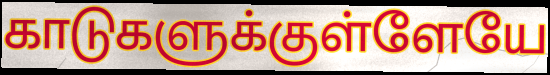
காடுகளுக்குள்ளேயே